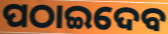
ପଠାଇଦେବ